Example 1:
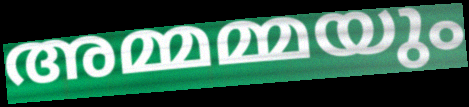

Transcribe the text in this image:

അമ്മമ്മയും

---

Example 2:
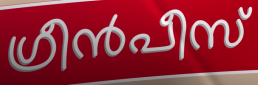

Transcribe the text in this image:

ഗ്രീൻപീസ്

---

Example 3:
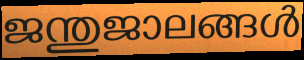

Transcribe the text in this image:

ജന്തുജാലങ്ങൾ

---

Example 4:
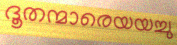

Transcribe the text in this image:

ദൂതന്മാരെയയച്ചു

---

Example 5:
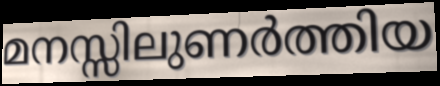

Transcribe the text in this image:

മനസ്സിലുണർത്തിയ